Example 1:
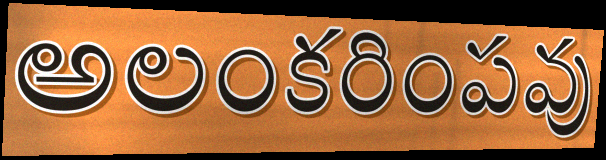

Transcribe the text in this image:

అలంకరింపవు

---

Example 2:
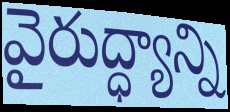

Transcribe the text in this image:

వైరుద్ధ్యాన్ని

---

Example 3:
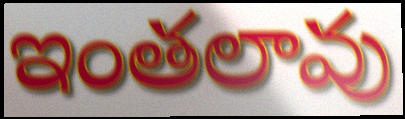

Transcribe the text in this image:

ఇంతలావు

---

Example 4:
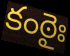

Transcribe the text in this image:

కంఠైః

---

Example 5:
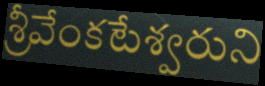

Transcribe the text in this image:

శ్రీవేంకటేశ్వరుని